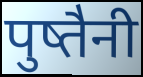
पुष्तैनी